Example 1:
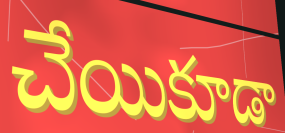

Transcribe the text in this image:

చేయికూడా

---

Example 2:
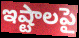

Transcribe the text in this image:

ఇష్టాలపై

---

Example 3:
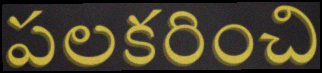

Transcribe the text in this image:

పలకరించి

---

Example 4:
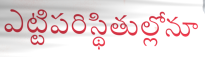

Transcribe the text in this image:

ఎట్టిపరిస్థితుల్లోనూ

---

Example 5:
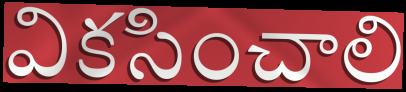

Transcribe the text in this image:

వికసించాలి